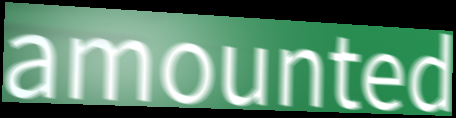
amounted